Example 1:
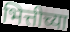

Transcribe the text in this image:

भित्तीच्या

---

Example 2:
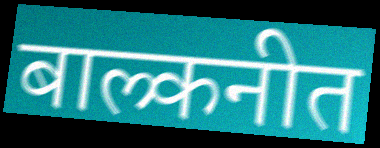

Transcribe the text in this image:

बाल्कनीत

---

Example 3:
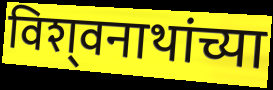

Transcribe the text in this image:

विश्वनाथांच्या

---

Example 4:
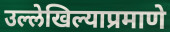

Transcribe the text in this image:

उल्लेखिल्याप्रमाणे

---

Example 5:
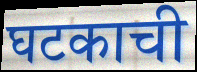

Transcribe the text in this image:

घटकाची